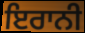
ਇਰਾਨੀ